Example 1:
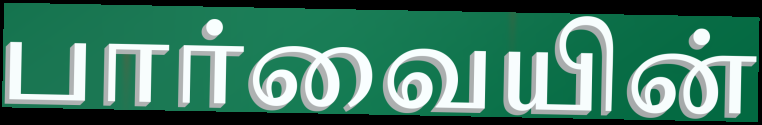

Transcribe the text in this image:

பார்வையின்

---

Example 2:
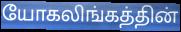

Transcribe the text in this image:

யோகலிங்கத்தின்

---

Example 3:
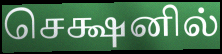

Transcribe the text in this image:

செக்ஷனில்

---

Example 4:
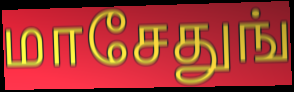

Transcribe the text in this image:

மாசேதுங்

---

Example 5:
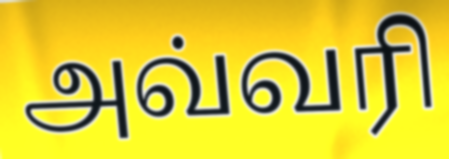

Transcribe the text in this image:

அவ்வரி